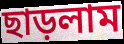
ছাড়লাম